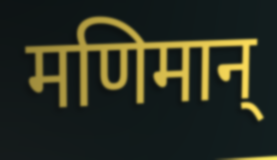
मणिमान्